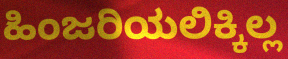
ಹಿಂಜರಿಯಲಿಕ್ಕಿಲ್ಲ